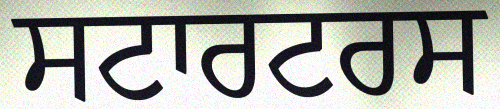
ਸਟਾਰਟਰਸ